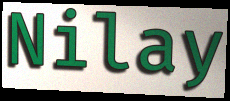
Nilay